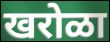
खरोळा